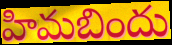
హిమబిందు